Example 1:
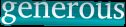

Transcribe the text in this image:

generous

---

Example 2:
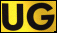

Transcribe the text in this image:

UG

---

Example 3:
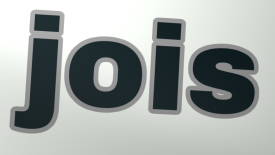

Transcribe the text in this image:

jois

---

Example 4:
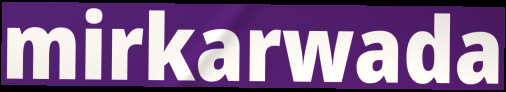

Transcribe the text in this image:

mirkarwada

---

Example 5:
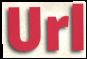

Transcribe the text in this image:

Url